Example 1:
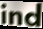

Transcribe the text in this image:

ind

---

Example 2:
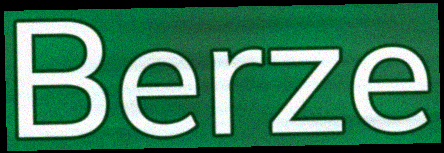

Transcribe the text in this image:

Berze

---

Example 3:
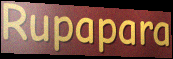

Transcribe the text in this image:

Rupapara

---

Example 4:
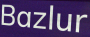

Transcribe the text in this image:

Bazlur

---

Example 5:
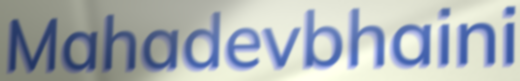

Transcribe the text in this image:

Mahadevbhaini